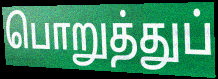
பொறுத்துப்